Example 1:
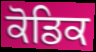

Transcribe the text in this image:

ਕੋਡਿਕ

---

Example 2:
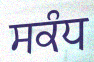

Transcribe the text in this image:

ਸਕੰਧ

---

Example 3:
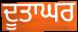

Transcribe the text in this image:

ਦੂਤਾਘਰ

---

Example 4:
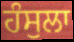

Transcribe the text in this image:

ਹੰਸੁਲਾ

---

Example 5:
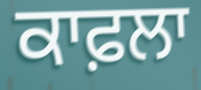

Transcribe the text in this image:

ਕਾਫ਼ਲਾ